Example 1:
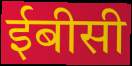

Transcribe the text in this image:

ईबीसी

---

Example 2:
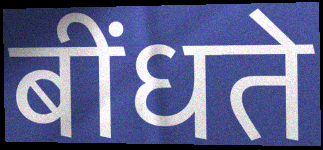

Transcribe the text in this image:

बींधते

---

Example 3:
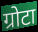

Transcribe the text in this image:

ग्रोटा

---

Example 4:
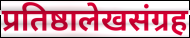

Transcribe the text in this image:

प्रतिष्ठालेखसंग्रह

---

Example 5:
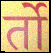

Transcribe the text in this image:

र्तो